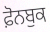
ਫ਼ੋਨਬੁਕ